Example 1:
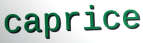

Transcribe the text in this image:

caprice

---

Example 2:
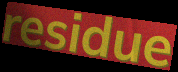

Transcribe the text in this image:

residue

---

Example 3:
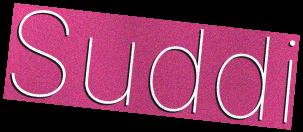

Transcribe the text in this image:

Suddi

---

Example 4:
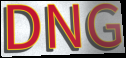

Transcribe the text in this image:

DNG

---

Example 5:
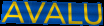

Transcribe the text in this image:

AVALU